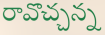
రావొచ్చన్న